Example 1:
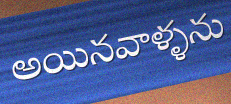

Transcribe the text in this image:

అయినవాళ్ళను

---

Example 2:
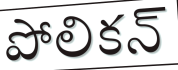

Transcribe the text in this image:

పోలికన్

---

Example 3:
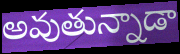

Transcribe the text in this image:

అవుతున్నాడా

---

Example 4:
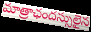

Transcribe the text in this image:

మాత్రాఛందస్సులైన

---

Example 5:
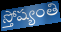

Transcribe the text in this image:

స్తోష్యంతి